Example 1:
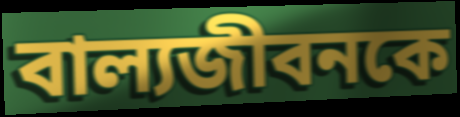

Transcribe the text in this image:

বাল্যজীবনকে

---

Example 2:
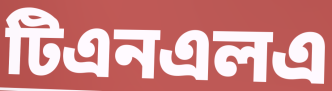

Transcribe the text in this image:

টিএনএলএ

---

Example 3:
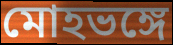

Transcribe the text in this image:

মোহভঙ্গে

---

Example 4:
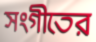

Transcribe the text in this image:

সংগীতের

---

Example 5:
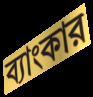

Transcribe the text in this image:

ব্যাংকার